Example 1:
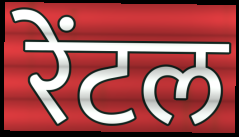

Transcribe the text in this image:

रेंटल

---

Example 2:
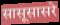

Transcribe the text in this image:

सासूसासरे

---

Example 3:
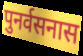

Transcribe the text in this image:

पुनर्वसनास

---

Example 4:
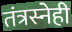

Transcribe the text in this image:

तंत्रस्नेही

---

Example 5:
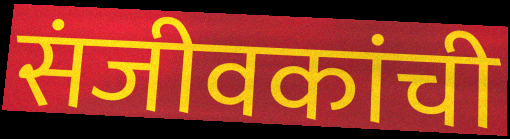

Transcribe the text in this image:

संजीवकांची